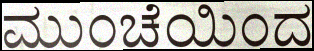
ಮುಂಚೆಯಿಂದ